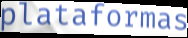
plataformas